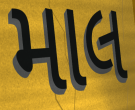
માલ